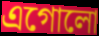
এগোলো